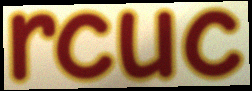
rcuc